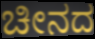
ಚೀನದ